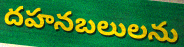
దహనబలులను